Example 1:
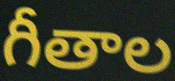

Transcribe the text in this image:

గీతాల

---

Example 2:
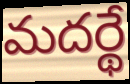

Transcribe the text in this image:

మదర్థే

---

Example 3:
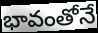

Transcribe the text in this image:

భావంతోనే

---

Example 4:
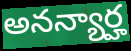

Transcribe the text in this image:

అనన్యార్హ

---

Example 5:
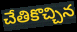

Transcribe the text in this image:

చేతికొచ్చిన